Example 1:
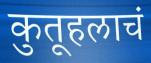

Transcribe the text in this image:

कुतूहलाचं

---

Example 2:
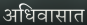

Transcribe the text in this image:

अधिवासात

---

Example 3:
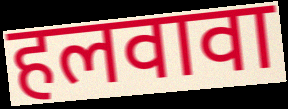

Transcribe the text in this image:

हलवावा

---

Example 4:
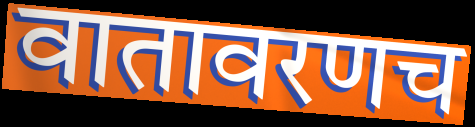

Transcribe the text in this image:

वातावरणच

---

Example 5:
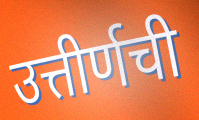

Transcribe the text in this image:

उत्तीर्णची